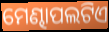
ମେଣ୍ଢାପଲଟିଏ